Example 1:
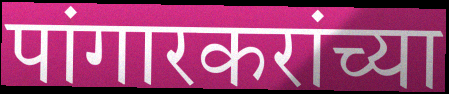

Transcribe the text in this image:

पांगारकरांच्या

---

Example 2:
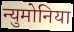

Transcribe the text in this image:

न्युमोनिया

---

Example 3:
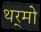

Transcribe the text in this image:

थर्मो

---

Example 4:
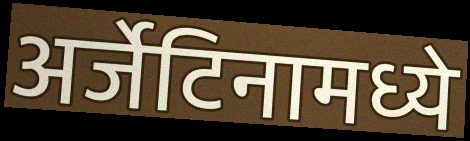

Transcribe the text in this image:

अर्जेटिनामध्ये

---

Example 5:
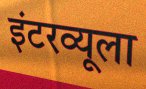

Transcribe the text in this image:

इंटरव्यूला